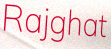
Rajghat